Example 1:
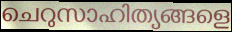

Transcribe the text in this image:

ചെറുസാഹിത്യങ്ങളെ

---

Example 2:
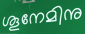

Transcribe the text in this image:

ശൂനേമിനു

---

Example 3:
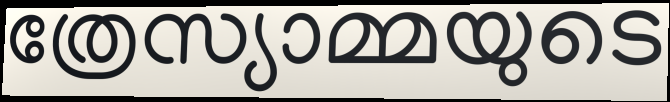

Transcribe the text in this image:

ത്രേസ്യാമ്മയുടെ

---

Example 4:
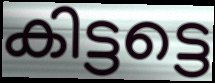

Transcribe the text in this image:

കിട്ടട്ടെ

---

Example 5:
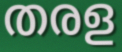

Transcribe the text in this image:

തരള